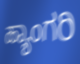
ಹ್ಯಾಂಗರಿ